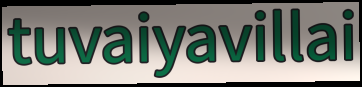
tuvaiyavillai